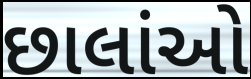
છાલાંઓ